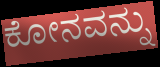
ಕೋನವನ್ನು